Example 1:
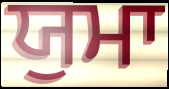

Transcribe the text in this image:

ਯੁਮਾ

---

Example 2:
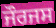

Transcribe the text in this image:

ਜੌਰਜਸ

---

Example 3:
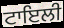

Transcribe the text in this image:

ਟਾਇਲੀ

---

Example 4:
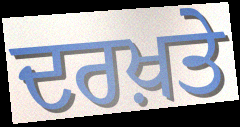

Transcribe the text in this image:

ਦਰਖ਼ਤੇ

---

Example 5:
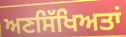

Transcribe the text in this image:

ਅਣਸਿੱਖਿਅਤਾਂ